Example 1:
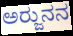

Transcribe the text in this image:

ಅರ್‍ಜುನನ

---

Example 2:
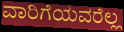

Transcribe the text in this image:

ವಾರಿಗೆಯವರೆಲ್ಲ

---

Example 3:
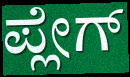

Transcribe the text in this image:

ಪ್ಲೇಗ್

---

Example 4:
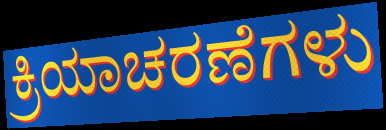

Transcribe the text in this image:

ಕ್ರಿಯಾಚರಣೆಗಳು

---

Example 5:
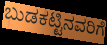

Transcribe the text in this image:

ಬುಡಕಟ್ಟಿನವರಿಗೆ